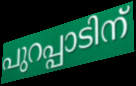
പുറപ്പാടിന്